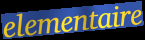
elementaire